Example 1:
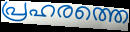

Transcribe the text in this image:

പ്രഹരത്തെ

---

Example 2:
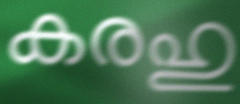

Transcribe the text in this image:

കരഹു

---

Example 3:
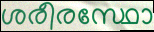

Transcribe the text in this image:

ശരീരസ്ഥോ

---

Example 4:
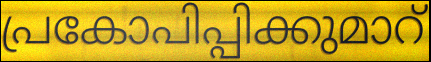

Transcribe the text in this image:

പ്രകോപിപ്പിക്കുമാറ്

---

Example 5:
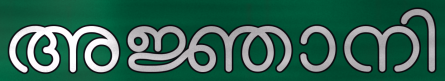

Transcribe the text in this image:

അജ്ഞാനി